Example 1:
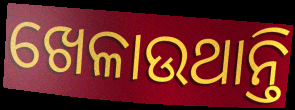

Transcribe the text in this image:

ଖେଳାଉଥାନ୍ତି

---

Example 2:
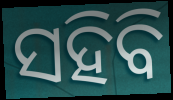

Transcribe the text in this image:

ସହିବି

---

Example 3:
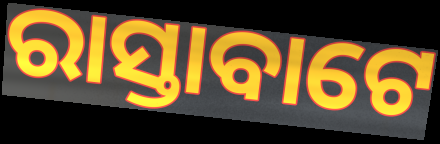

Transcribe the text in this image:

ରାସ୍ତାବାଟେ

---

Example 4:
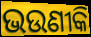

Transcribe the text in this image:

ଭଉଣୀକି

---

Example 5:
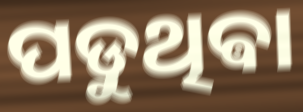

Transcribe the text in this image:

ପଡୁଥିଵା